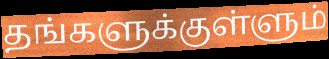
தங்களுக்குள்ளும்